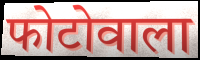
फोटोवाला